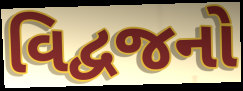
વિદ્વજનો